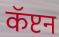
कॅप्टन